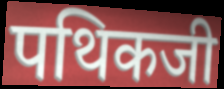
पथिकजी